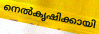
നെൽകൃഷിക്കായി